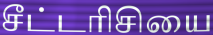
சீட்டரிசியை